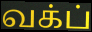
வக்ப்